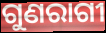
ଗୁଣରାଗୀ